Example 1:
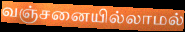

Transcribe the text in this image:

வஞ்சனையில்லாமல்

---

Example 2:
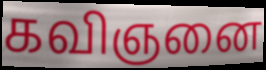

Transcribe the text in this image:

கவிஞனை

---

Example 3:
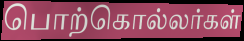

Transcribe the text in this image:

பொற்கொல்லர்கள்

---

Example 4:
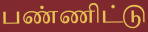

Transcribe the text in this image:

பண்ணிட்டு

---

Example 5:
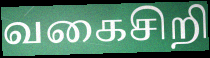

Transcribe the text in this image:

வகைசிறி